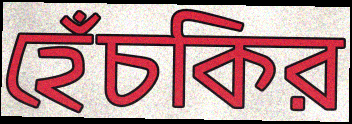
হেঁচকির